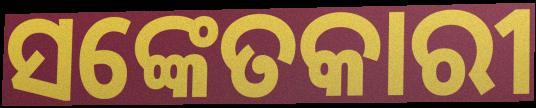
ସଙ୍କେତକାରୀ